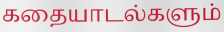
கதையாடல்களும்